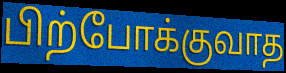
பிற்போக்குவாத